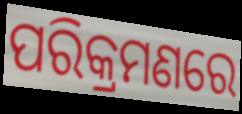
ପରିକ୍ରମଣରେ